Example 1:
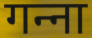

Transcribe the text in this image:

गन्ना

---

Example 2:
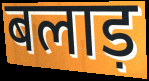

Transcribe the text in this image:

बलाड़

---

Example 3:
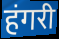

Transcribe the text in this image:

हंगरी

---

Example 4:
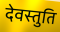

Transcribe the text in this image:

देवस्तुति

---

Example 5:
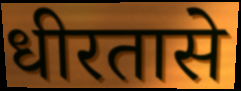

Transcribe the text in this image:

धीरतासे